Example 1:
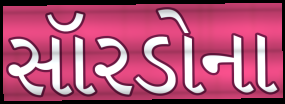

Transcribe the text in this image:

સૉરડોના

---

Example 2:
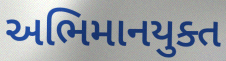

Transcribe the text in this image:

અભિમાનયુક્ત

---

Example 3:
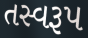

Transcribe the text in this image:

તસ્વરૂપ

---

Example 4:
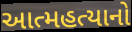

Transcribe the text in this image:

આત્મહત્યાનો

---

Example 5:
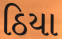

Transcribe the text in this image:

ઠિયા